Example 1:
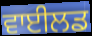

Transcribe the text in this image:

ਵਾਈਲਡ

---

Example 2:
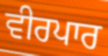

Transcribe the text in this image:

ਵੀਰਪਾਰ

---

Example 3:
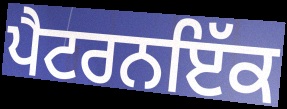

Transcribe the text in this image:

ਪੈਟਰਨਇੱਕ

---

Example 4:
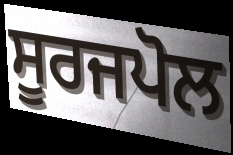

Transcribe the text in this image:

ਸੂਰਜਪੋਲ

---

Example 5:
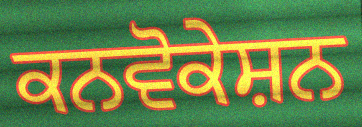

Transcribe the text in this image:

ਕਨਵੋਕੇਸ਼ਨ